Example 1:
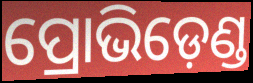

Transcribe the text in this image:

ପ୍ରୋଭିଡ଼େଣ୍ଡ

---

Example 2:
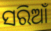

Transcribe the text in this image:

ସରିଆଁ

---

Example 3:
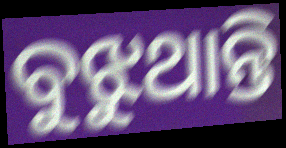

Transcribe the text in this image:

ବୁଝୁଥାନ୍ତି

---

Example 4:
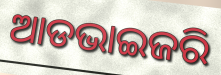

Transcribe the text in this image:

ଆଡଭାଇଜରି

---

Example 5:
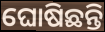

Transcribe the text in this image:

ଘୋଷିଛନ୍ତି